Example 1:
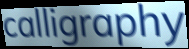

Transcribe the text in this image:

calligraphy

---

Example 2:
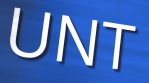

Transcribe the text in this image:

UNT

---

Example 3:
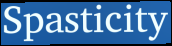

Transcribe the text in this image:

Spasticity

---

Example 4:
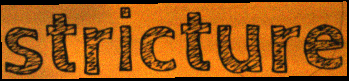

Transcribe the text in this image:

stricture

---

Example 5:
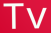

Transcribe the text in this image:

Tv